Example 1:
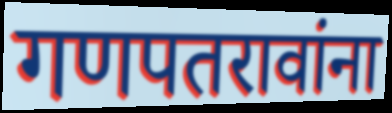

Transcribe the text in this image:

गणपतरावांना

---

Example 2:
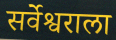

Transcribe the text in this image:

सर्वेश्वराला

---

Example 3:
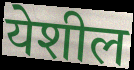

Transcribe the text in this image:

येशील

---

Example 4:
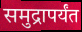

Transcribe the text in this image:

समुद्रापर्यंत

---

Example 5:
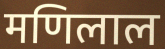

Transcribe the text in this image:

मणिलाल